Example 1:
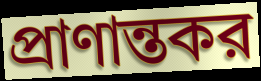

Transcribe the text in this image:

প্রাণান্তকর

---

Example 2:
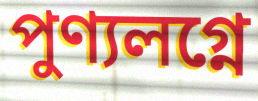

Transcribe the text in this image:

পুণ্যলগ্নে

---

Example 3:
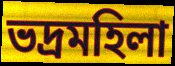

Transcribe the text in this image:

ভদ্রমহিলা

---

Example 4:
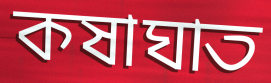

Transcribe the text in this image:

কষাঘাত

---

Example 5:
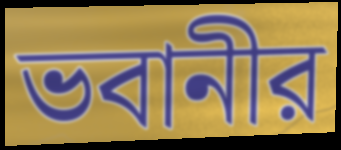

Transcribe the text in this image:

ভবানীর